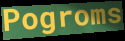
Pogroms